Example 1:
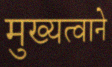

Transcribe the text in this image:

मुख्यत्वाने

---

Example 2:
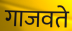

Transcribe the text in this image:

गाजवते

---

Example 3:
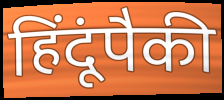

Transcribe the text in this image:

हिंदूंपैकी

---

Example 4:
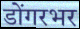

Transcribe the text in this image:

डोंगरभर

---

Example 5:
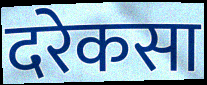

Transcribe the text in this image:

दरेकसा